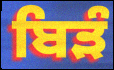
ਬਿੜੰ